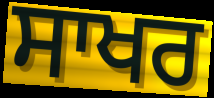
ਸਾਖਰ